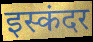
इस्कंदर